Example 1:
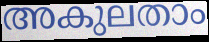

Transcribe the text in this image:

അകുലതാം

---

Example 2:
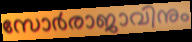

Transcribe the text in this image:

സോർരാജാവിനും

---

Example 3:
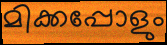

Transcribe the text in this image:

മിക്കപ്പോളും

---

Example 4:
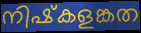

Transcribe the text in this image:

നിഷ്‌കളങ്കത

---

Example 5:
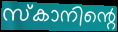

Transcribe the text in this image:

സ്കാനിന്റെ